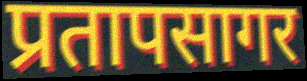
प्रतापसागर